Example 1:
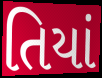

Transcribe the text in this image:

તિયાં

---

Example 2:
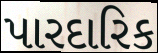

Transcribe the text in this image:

પારદારિક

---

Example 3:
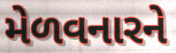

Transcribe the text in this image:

મેળવનારને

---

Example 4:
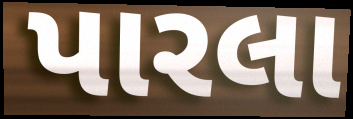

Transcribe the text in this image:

પારલા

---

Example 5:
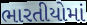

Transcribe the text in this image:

ભારતીયોમાં